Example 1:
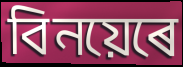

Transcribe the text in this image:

বিনয়েৰে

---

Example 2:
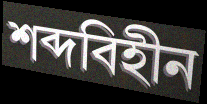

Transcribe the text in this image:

শব্দবিহীন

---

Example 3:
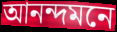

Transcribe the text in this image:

আনন্দমনে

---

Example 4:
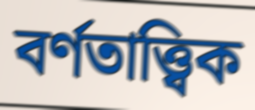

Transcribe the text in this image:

বৰ্ণতাত্ত্বিক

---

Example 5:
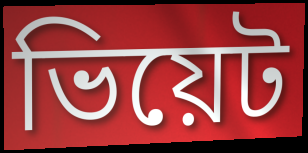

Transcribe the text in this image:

ভিয়েট